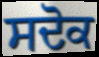
ਸਦੋਕ